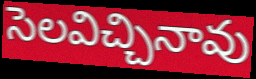
సెలవిచ్చినావు